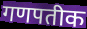
गणपतीक